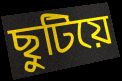
ছুটিয়ে